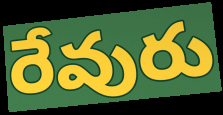
రేవురు